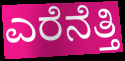
ಎರೆನೆತ್ತಿ